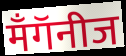
मँगॅनीज